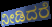
ನೀಡಿದರೆ